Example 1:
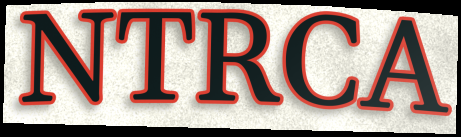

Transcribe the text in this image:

NTRCA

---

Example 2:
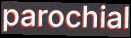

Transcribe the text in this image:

parochial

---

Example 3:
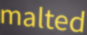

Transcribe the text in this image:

malted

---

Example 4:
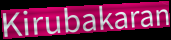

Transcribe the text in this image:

Kirubakaran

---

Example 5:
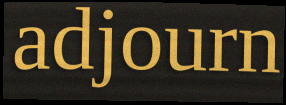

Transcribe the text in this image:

adjourn